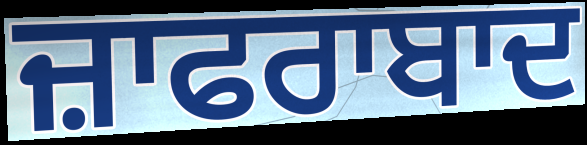
ਜ਼ਾਫਰਾਬਾਦ